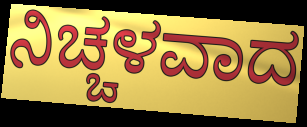
ನಿಚ್ಚಳವಾದ